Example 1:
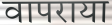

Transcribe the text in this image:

वापराया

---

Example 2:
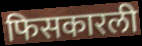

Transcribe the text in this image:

फिसकारली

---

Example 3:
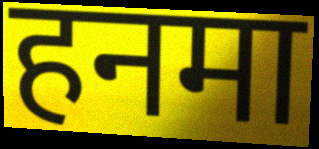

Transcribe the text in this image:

हनमा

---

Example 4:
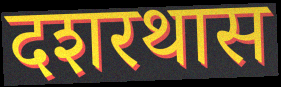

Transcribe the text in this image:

दशरथास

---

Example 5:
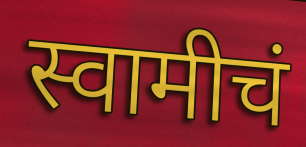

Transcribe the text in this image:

स्वामीचं